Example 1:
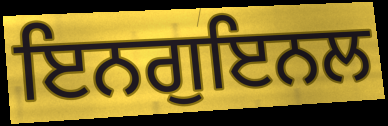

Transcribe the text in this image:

ਇਨਗੁਇਨਲ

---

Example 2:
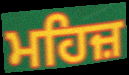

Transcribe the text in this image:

ਮਹਿਜ਼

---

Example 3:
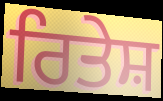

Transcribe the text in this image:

ਰਿਤੇਸ਼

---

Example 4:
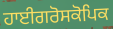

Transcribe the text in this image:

ਹਾਈਗਰੋਸਕੋਪਿਕ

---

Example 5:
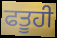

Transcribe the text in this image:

ਫਤੂਹੀ